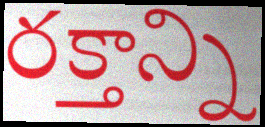
రక్తాన్ని